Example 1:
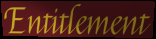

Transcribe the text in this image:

Entitlement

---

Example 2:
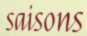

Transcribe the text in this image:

saisons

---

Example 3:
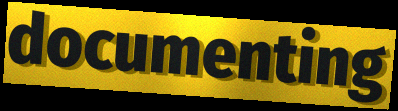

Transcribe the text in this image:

documenting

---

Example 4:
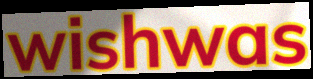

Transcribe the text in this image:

wishwas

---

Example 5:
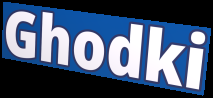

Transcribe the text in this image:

Ghodki